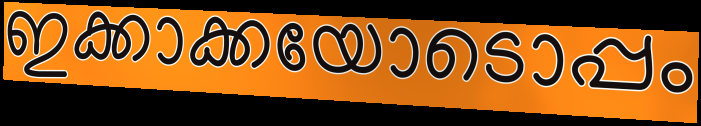
ഇക്കാക്കയോടൊപ്പം